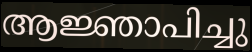
ആജ്ഞാപിച്ചു